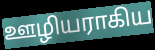
ஊழியராகிய